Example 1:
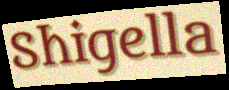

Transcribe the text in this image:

Shigella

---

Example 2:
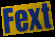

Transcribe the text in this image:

Fext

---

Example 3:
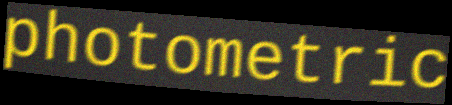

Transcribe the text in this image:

photometric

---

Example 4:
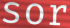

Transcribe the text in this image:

sor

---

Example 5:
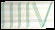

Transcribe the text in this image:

IIIIV